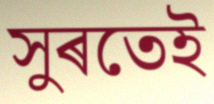
সুৰতেই